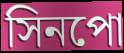
সিনপো